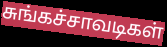
சுங்கச்சாவடிகள்